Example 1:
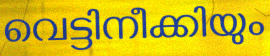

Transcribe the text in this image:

വെട്ടിനീക്കിയും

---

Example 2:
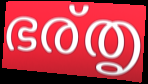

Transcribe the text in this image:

ഭര്തൃ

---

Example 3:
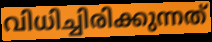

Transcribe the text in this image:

വിധിച്ചിരിക്കുന്നത്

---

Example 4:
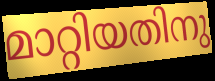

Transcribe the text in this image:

മാറ്റിയതിനു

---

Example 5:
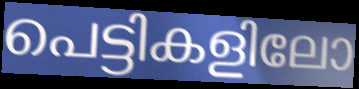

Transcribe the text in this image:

പെട്ടികളിലോ